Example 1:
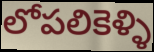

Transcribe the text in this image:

లోపలికెళ్ళి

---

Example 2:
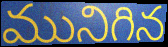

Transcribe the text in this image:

మునిగిన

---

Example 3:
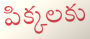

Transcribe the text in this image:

పిక్కలకు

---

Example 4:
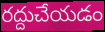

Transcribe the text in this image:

రద్దుచేయడం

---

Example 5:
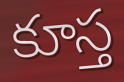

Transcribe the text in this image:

కూస్త